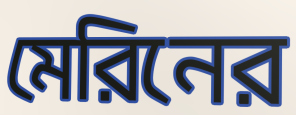
মেরিনের